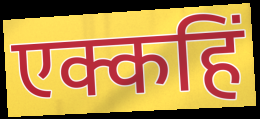
एक्कहिं